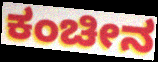
ಕಂಚೀನ